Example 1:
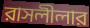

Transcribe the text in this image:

রাসলীলার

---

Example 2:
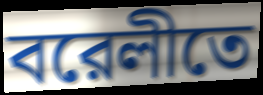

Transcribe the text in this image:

বরেলীতে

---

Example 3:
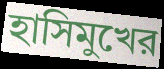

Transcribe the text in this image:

হাসিমুখের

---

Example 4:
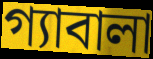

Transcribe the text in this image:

গ্যাবালা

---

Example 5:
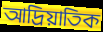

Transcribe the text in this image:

আদ্রিয়াতিক